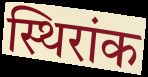
स्थिरांक